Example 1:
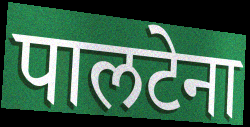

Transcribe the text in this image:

पालटेना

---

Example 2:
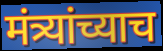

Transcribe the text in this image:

मंत्र्यांच्याच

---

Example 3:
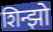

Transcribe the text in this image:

शिन्झो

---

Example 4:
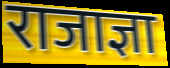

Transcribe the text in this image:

राजाज्ञा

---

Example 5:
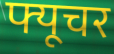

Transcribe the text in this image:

फ्यूचर